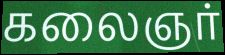
கலைஞர்